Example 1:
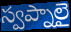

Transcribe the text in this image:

స్వప్నాలై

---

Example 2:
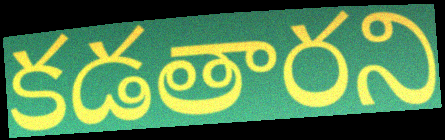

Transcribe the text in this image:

కడతారని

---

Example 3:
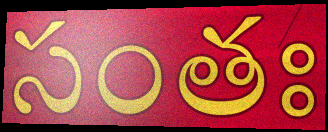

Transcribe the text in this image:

సంతః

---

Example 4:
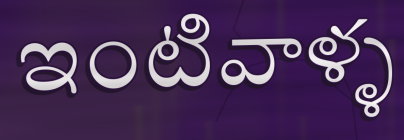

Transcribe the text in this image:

ఇంటివాళ్ళ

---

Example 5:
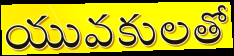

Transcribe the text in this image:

యువకులతో